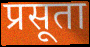
प्रसूता